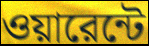
ওয়ারেন্টে